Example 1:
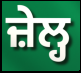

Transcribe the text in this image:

ਜ਼ੇਲ੍ਹ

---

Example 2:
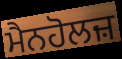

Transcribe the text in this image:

ਮੈਨਹੋਲਜ਼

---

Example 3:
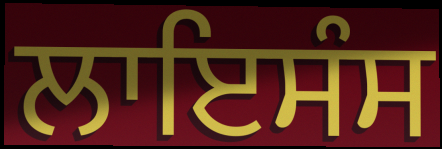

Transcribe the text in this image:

ਲਾਇਸੰਸ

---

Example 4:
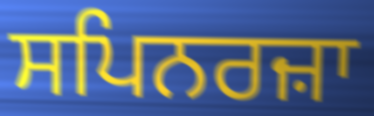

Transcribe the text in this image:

ਸਪਿਨਰਜ਼ਾ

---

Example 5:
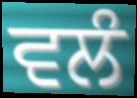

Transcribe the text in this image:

ਵਲੰ